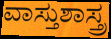
ವಾಸ್ತುಶಾಸ್ತ್ರ